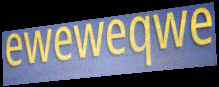
eweweqwe